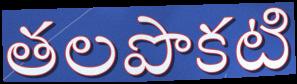
తలపొకటి